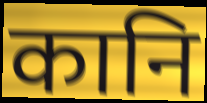
कानि